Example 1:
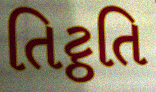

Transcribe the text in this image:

તિટ્ઠતિ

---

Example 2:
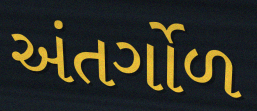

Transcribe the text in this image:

અંતર્ગોળ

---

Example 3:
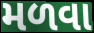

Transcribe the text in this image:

મળવા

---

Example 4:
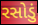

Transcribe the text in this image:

રસોડું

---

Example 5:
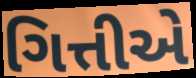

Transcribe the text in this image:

ગિત્તીએ